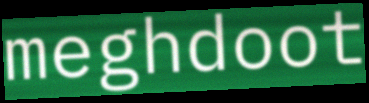
meghdoot